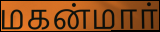
மகன்மார்